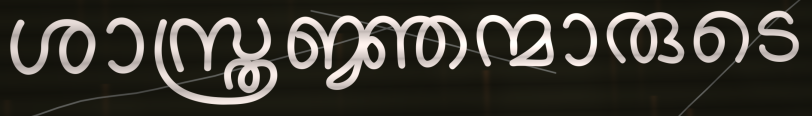
ശാസ്ത്രജ്ഞന്മാരുടെ